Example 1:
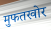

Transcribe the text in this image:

मुफतखोर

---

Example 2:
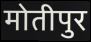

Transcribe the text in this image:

मोतीपुर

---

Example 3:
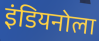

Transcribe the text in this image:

इंडियनोला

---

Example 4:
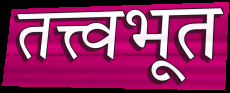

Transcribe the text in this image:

तत्त्वभूत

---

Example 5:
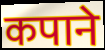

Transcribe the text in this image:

कपाने